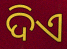
ଦିଏ